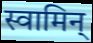
स्वामिन्